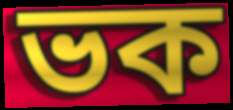
ভক